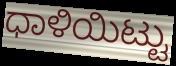
ಧಾಳಿಯಿಟ್ಟು